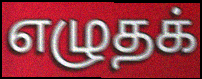
எழுதக்